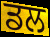
ਡਲ